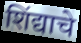
शिंद्याचे